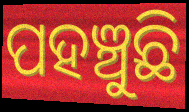
ପହଞ୍ଚୁଛି